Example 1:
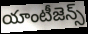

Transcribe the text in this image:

యాంటీజెన్స్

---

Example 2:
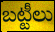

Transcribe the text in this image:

బట్టీలు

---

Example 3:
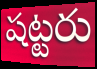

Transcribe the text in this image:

షట్టరు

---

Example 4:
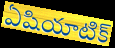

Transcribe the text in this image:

ఏషియాటిక్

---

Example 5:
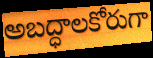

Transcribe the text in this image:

అబద్ధాలకోరుగా